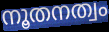
നൂതനത്വം